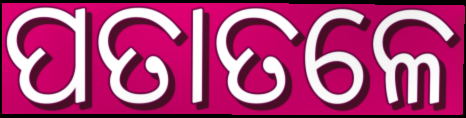
ପତାତଳେ